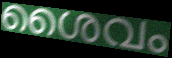
ശൈവം